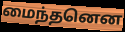
மைந்தனென